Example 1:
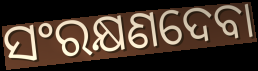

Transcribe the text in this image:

ସଂରକ୍ଷଣଦେବା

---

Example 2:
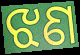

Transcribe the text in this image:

ଝଣ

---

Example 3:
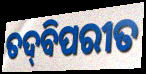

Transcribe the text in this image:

ତଦ୍‍ବିପରୀତ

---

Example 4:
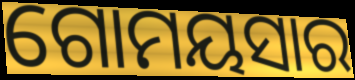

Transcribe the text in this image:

ଗୋମୟସାର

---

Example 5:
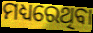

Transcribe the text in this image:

ମଧ୍ୟରେଥିବା